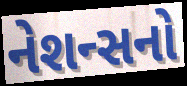
નેશન્સનો